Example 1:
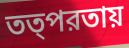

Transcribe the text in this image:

তত্পরতায়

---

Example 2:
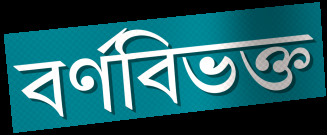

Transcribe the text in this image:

বর্ণবিভক্ত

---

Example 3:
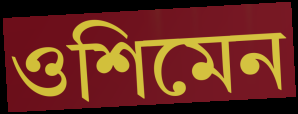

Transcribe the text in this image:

ওশিমেন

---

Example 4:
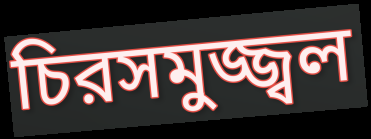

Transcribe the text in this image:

চিরসমুজ্জ্বল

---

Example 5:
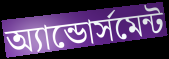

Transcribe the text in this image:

অ্যান্ডোর্সমেন্ট